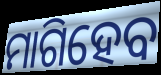
ମାଗିହେବ